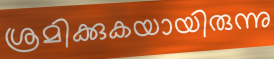
ശ്രമിക്കുകയായിരുന്നു